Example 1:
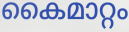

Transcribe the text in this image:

കൈമാറ്റം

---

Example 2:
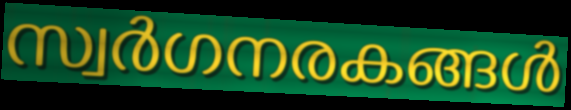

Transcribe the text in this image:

സ്വർഗനരകങ്ങൾ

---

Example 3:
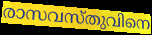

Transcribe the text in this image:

രാസവസ്തുവിനെ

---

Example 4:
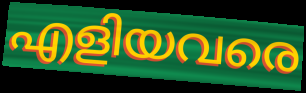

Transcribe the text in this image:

എളിയവരെ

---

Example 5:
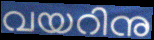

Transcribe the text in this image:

വയറിനു